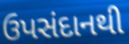
ઉપસંદાનથી